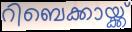
റിബെക്കായ്ക്ക്